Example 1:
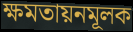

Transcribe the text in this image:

ক্ষমতায়নমূলক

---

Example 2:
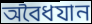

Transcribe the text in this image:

অবৈধযান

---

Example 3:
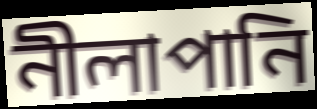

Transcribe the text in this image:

নীলাপানি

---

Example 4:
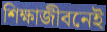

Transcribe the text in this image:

শিক্ষাজীবনেই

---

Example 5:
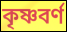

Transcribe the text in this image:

কৃষ্ণবর্ণ